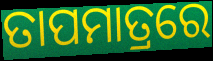
ତାପମାତ୍ରରେ